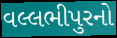
વલ્લભીપુરનો